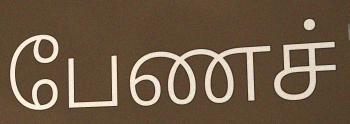
பேணச்